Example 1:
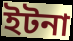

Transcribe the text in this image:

ইটনা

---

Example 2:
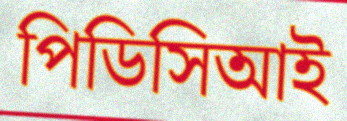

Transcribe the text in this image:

পিডিসিআই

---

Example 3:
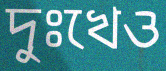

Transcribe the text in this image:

দুঃখেও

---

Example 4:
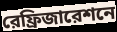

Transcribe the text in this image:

রেফ্রিজারেশনে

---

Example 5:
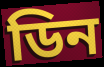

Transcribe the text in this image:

ডিন